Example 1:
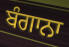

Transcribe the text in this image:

ਬੰਗਾਨਾ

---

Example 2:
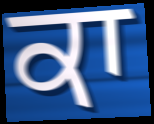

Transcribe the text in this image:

ਕਾ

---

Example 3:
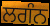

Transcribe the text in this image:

ਲਗੰਨ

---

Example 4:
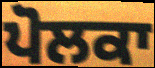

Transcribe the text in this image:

ਪੋਲਕਾ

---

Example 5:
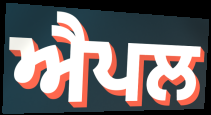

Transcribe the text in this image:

ਐਪਲ